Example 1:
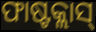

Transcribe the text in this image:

ଫାଷ୍ଟକ୍ଲାସ୍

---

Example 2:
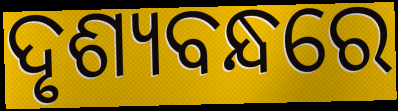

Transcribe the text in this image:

ଦୃଶ୍ୟବନ୍ଧରେ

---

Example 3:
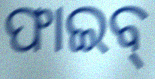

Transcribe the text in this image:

ଫାଇବ୍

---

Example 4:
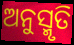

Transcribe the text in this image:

ଅନୁସ୍ମୃତି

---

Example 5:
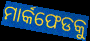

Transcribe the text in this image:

ମାର୍କଫେଡକୁ